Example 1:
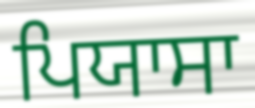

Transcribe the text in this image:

ਪਿਯਾਸਾ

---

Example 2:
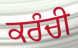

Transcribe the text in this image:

ਕਰੰਚੀ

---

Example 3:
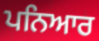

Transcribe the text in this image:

ਪਨਿਆਰ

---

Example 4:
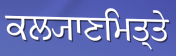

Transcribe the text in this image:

ਕਲ੍ਯਾਣਮਿਤ੍ਤੇ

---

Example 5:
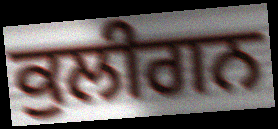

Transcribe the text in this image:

ਕੁਲੀਗਨ